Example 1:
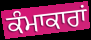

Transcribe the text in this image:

ਕੰਮਾਕਾਰਾਂ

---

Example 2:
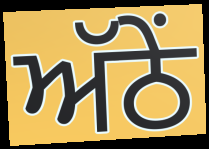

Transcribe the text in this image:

ਅੱਠੇਂ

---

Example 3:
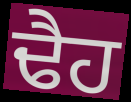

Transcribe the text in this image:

ਢੈਹ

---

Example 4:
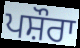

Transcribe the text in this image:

ਪਸ਼ੌਰਾ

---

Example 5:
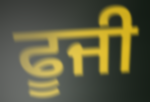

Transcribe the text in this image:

ਫੂਜੀ